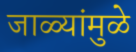
जाळ्यांमुळे